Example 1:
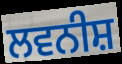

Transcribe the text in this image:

ਲਵਨੀਸ਼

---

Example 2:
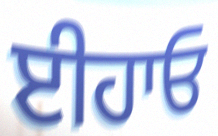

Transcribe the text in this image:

ਈਹਾਓ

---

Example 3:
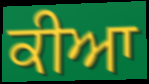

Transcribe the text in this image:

ਕੀਆ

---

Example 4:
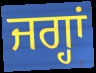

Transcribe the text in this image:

ਜਗ੍ਹਾਂ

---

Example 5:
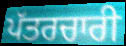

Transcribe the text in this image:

ਪੱਤਰਚਾਰੀ